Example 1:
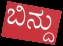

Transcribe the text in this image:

ಬಿನ್ದು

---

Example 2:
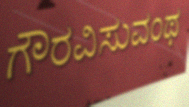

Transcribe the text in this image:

ಗೌರವಿಸುವಂಥ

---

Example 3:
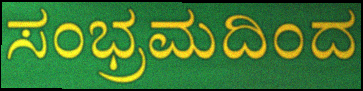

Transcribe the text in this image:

ಸಂಭ್ರಮದಿಂದ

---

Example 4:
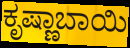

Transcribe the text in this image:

ಕೃಷ್ಣಾಬಾಯಿ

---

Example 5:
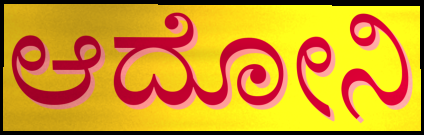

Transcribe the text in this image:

ಆದೋನಿ